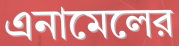
এনামেলের